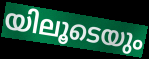
യിലൂടെയും